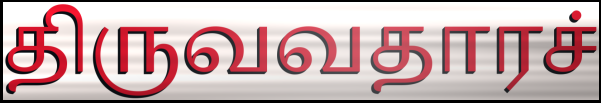
திருவவதாரச்